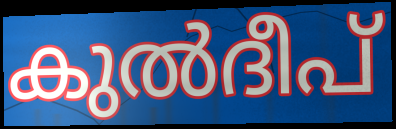
കുൽദീപ്